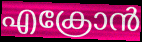
എക്രോൻ